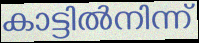
കാട്ടിൽനിന്ന്